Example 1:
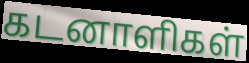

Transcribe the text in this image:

கடனாளிகள்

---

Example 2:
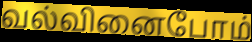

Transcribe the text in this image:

வல்வினைபோம்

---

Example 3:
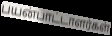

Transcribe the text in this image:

பயன்பாட்டாளர்கள்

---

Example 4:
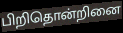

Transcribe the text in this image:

பிறிதொன்றினை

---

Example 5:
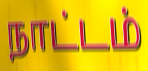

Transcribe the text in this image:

நாட்டம்